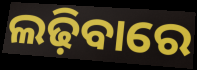
ଲଢ଼ିବାରେ